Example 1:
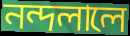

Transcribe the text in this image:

নন্দলালে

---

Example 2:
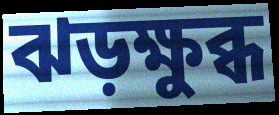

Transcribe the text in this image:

ঝড়ক্ষুব্ধ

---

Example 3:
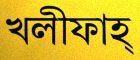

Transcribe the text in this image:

খলীফাহ্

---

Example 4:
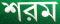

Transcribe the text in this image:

শরম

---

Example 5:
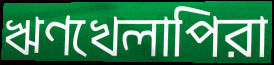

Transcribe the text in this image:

ঋণখেলাপিরা